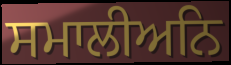
ਸਮਾਲੀਅਨਿ